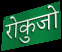
रोकुजो